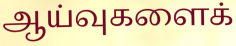
ஆய்வுகளைக்